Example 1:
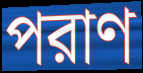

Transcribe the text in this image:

পরাণ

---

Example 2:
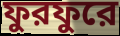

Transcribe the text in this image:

ফুরফুরে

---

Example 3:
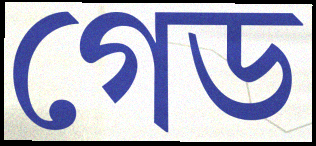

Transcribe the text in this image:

গেড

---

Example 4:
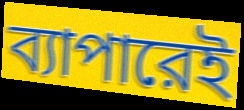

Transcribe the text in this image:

ব্যাপারেই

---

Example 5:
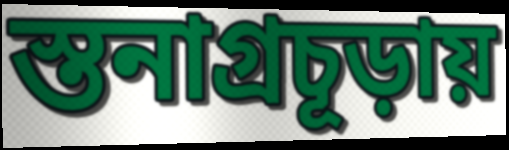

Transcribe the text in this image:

স্তনাগ্রচূড়ায়